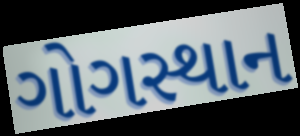
ગોગસ્થાન